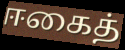
ஈகைத்